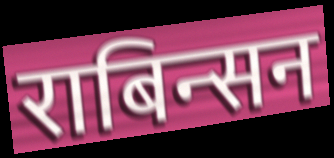
राबिन्सन